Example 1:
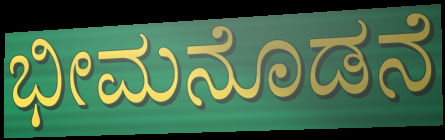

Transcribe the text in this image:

ಭೀಮನೊಡನೆ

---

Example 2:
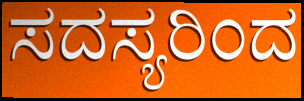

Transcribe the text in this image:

ಸದಸ್ಯರಿಂದ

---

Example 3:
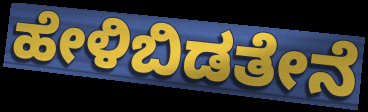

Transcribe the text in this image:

ಹೇಳಿಬಿಡತೇನೆ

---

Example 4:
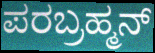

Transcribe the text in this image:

ಪರಬ್ರಹ್ಮನ್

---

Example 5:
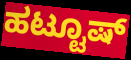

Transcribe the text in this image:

ಹಟ್ಟೂಷ್